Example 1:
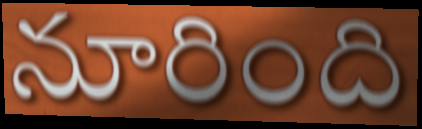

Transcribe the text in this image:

నూరింది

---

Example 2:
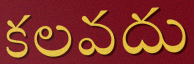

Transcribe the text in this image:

కలవదు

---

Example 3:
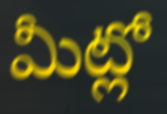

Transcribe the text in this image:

మీట్లో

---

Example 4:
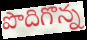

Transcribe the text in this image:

పొదిగొన్న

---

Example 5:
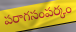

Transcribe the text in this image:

పరాగసంపర్కం